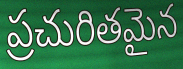
ప్రచురితమైన